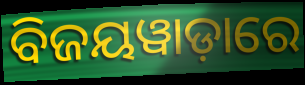
ବିଜୟୱାଡ଼ାରେ